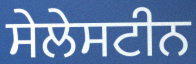
ਸੇਲੇਸਟੀਨ